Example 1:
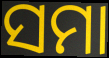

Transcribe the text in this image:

ସମା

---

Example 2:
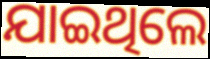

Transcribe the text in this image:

ଯାଇଥିଲେ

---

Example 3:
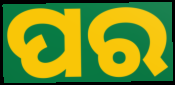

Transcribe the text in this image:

ପର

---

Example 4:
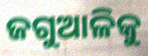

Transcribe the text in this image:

ଜଗୁଆଳିକୁ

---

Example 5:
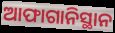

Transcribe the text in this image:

ଆଫାଗାନିସ୍ଥାନ